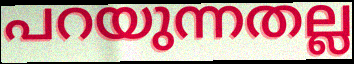
പറയുന്നതല്ല